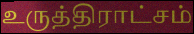
உருத்திராட்சம்